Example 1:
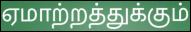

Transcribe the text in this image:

ஏமாற்றத்துக்கும்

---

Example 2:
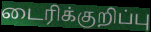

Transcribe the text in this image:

டைரிக்குறிப்பு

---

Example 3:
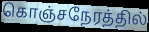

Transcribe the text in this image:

கொஞ்சநேரத்தில்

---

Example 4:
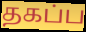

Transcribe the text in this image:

தகப்ப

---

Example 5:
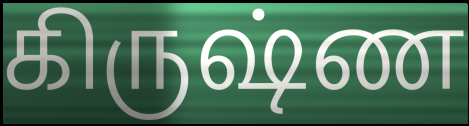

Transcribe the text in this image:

கிருஷ்ண